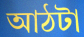
আঠটা